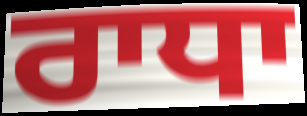
ਰਾਧਾ